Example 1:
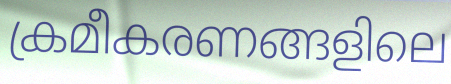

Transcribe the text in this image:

ക്രമീകരണങ്ങളിലെ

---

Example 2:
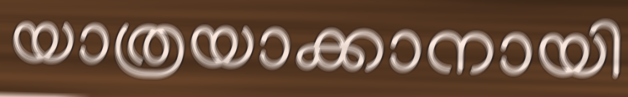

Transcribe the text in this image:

യാത്രയാക്കാനായി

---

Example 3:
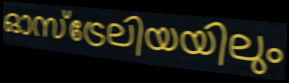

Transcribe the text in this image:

ഓസ്ട്രേലിയയിലും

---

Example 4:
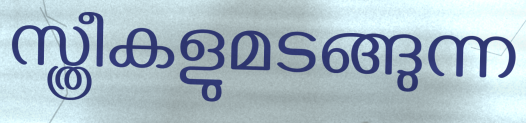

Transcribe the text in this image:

സ്ത്രീകളുമടങ്ങുന്ന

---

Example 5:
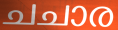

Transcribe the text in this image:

ചചാര